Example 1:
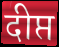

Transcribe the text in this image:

दीप्त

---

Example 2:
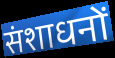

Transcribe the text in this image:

संशाधनों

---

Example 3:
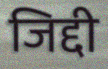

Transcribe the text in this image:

जिद्दी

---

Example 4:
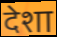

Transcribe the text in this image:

देशा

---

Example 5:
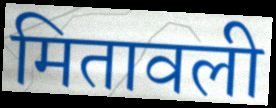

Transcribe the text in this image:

मितावली